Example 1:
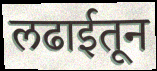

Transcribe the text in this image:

लढाईतून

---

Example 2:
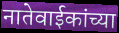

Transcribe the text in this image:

नातेवाईकांच्या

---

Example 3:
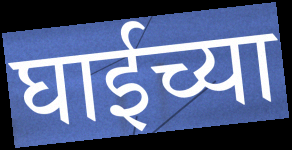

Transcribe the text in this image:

घाईच्या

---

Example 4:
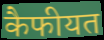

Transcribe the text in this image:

कैफीयत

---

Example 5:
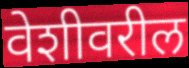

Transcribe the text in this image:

वेशीवरील